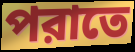
পরাতে